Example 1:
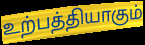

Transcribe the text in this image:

உற்பத்தியாகும்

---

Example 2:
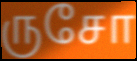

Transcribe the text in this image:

ருசோ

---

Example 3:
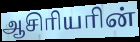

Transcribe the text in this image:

ஆசிரியரின்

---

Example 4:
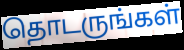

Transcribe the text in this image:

தொடருங்கள்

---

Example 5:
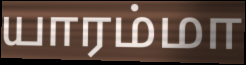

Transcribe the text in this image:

யாரம்மா